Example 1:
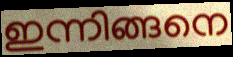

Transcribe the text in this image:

ഇന്നിങ്ങനെ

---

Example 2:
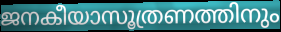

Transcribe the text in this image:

ജനകീയാസൂത്രണത്തിനും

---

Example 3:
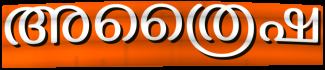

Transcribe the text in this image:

അത്രൈഷ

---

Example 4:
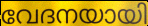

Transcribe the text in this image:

വേദനയായി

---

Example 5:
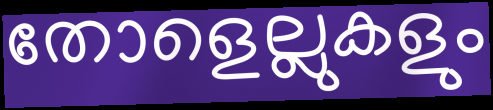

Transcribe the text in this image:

തോളെല്ലുകളും